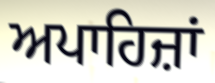
ਅਪਾਹਿਜ਼ਾਂ